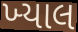
ખ્‍યાલ